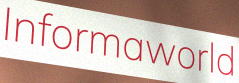
Informaworld